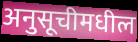
अनुसूचीमधील